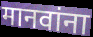
मानवांना